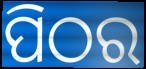
ପିଠର